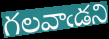
గలవాఁడని